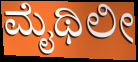
ಮೈಥಿಲೀ